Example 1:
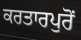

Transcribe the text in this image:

ਕਰਤਾਰਪੁਰੋਂ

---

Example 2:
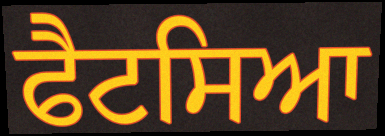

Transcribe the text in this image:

ਫੈਟਸਿਆ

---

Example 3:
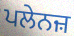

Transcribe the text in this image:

ਪਲੇਨਜ਼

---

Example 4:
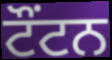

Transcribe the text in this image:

ਟੌਂਟਨ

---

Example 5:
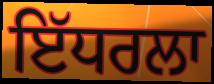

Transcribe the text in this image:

ਇੱਧਰਲਾ